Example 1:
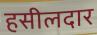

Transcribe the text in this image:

हसीलदार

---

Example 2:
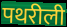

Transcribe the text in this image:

पथरीली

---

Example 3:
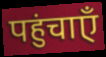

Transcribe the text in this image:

पहुंचाएँ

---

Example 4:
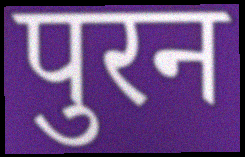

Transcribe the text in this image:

पुरन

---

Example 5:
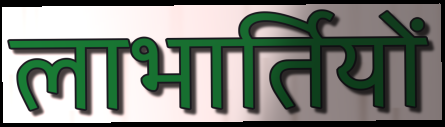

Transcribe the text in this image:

लाभार्तियों